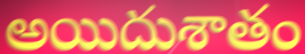
అయిదుశాతం